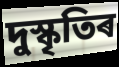
দুস্কৃতিৰ